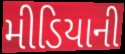
મીડિયાની